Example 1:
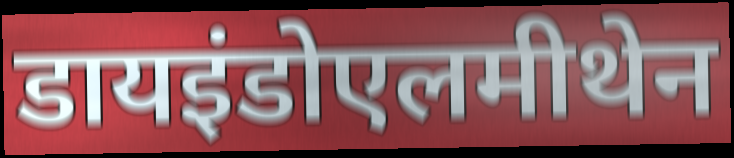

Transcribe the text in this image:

डायइंडोएलमीथेन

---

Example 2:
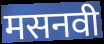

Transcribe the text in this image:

मसनवी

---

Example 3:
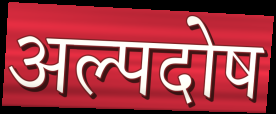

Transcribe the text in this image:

अल्पदोष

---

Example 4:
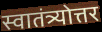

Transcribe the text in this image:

स्वातंत्र्योत्तर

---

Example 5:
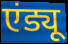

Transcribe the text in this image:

एंड्यू